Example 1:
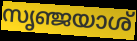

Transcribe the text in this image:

സൃഞ്ജയാശ്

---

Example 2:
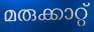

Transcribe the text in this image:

മരുക്കാറ്റ്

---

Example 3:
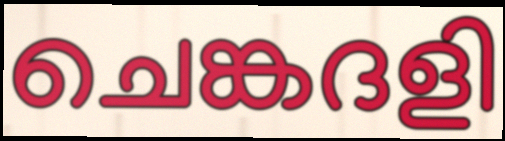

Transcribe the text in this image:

ചെങ്കദളി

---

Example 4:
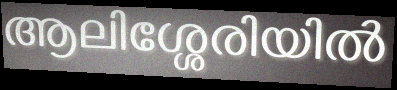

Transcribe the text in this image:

ആലിശ്ശേരിയിൽ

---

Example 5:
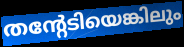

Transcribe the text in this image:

തന്റേടിയെങ്കിലും